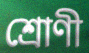
শ্রোণী